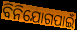
ବିନିଯୋଗପାଇଁ